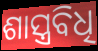
ଶାସ୍ତ୍ରବିଧି